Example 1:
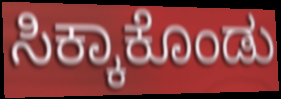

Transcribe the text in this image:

ಸಿಕ್ಕಾಕೊಂಡು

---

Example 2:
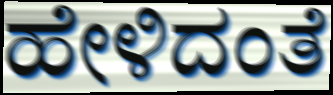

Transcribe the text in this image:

ಹೇಳಿದಂತೆ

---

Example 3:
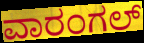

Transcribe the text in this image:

ವಾರಂಗಲ್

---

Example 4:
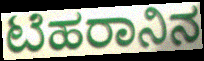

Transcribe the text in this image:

ಟೆಹರಾನಿನ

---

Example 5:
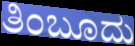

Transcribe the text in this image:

ತಿಂಬೂದು